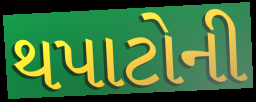
થપાટોની